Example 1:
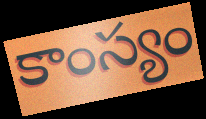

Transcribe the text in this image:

కాంస్యం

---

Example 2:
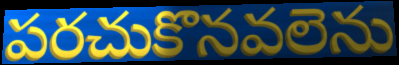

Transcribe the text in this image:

పరచుకొనవలెను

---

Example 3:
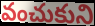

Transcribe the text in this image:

వంచుకుని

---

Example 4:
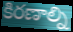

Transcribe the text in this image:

కిరణాల్ని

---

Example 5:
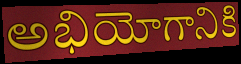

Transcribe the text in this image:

అభియోగానికి